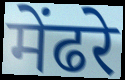
मेंढरे